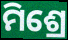
ମିଶ୍ରେ